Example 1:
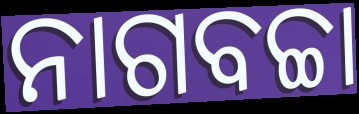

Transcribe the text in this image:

ନାଗବଚ୍ଚା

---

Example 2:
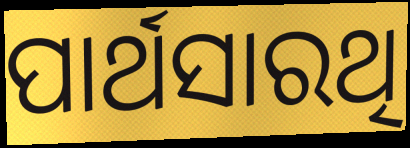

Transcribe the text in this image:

ପାର୍ଥସାରଥି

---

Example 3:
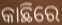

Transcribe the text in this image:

କାଛିରେ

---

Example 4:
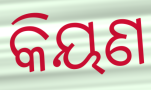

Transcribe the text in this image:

କିୟଣ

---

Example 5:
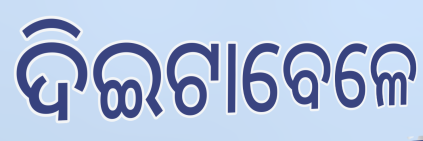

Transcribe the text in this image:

ଦିଇଟାବେଳେ